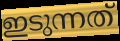
ഇടുന്നത്